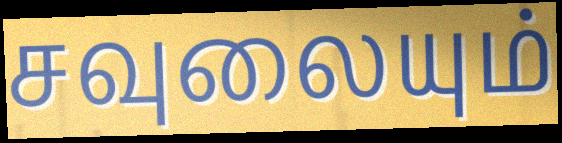
சவுலையும்